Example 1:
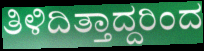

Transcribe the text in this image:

ತಿಳಿದಿತ್ತಾದ್ದರಿಂದ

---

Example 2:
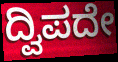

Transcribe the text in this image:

ದ್ವಿಪದೇ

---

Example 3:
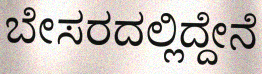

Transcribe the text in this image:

ಬೇಸರದಲ್ಲಿದ್ದೇನೆ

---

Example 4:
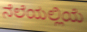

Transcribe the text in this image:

ನೆಲೆಯಲ್ಲಿಯೆ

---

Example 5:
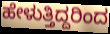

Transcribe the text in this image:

ಹೇಳುತ್ತಿದ್ದರಿಂದ